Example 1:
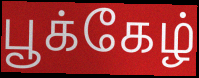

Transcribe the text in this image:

பூக்கேழ்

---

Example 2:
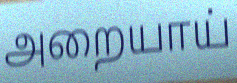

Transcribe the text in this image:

அறையாய்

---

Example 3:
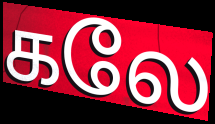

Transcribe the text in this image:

கலே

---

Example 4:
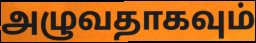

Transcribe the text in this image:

அழுவதாகவும்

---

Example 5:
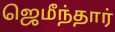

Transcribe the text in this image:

ஜெமீந்தார்